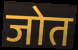
जोत